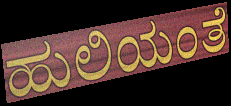
ಹುಲಿಯಂತೆ